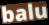
balu